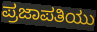
ಪ್ರಜಾಪತಿಯು